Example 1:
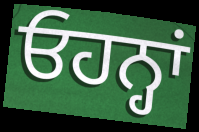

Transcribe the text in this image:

ਓਹਨ੍ਹਾਂ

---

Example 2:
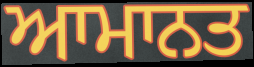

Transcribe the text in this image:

ਆਮਾਨਤ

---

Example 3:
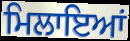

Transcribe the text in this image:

ਮਿਲਾਇਆਂ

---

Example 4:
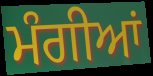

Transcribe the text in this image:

ਮੰਗੀਆਂ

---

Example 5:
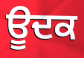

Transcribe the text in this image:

ਊਦਕ